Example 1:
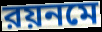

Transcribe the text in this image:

রয়নমে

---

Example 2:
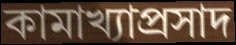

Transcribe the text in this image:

কামাখ্যাপ্রসাদ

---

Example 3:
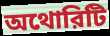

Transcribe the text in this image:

অথোরিটি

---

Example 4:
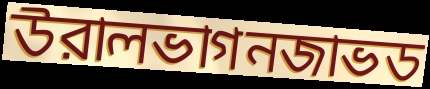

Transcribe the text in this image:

উরালভাগনজাভড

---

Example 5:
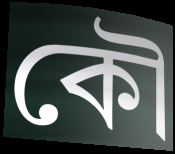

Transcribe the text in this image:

কৌ